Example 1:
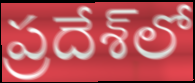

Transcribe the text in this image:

ప్రదేశ్‌లో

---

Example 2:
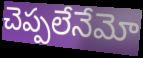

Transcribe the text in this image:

చెప్పలేనేమో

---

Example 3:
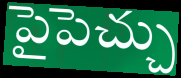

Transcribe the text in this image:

పైపెచ్చు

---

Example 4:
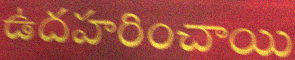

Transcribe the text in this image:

ఉదహరించాయి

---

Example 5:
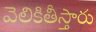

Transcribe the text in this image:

వెలికితీస్తారు